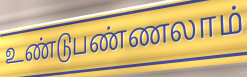
உண்டுபண்ணலாம்